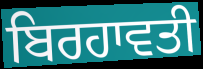
ਬਿਰਹਾਵਤੀ